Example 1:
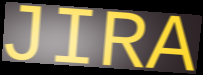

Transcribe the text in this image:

JIRA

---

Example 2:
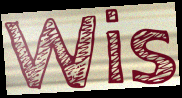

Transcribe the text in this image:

Wis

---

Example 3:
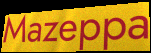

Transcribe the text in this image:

Mazeppa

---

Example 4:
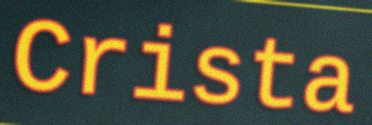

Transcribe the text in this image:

Crista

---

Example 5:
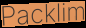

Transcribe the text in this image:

Packlim